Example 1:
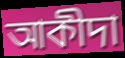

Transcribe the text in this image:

আকীদা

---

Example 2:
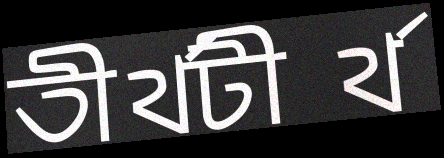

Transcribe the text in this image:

তীর্থটীর্থ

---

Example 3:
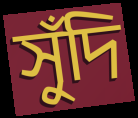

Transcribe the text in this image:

সুঁদি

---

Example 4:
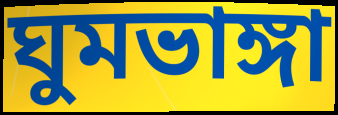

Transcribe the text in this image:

ঘুমভাঙ্গা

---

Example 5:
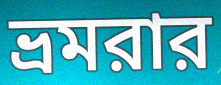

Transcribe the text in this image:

ভ্রমরার